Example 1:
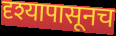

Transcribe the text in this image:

दृश्यापासूनच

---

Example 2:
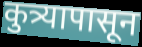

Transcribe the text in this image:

कुत्र्यापासून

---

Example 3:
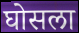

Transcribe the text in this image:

घोसला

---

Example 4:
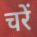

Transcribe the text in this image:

चरें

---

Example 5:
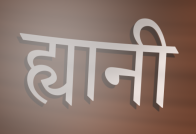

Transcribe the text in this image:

ह्यानी